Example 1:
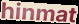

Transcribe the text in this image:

hinmat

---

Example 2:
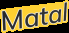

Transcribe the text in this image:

Matal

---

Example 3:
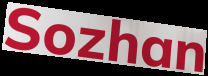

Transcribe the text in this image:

Sozhan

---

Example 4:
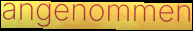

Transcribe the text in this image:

angenommen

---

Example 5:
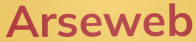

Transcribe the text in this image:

Arseweb